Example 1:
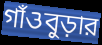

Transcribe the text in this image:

গাঁওবুড়ার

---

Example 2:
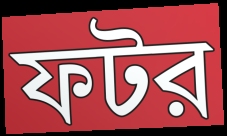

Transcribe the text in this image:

ফটর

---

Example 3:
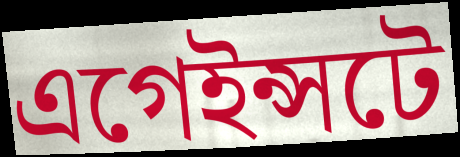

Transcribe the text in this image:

এগেইন্সটে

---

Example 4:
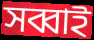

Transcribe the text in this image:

সব্বাই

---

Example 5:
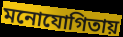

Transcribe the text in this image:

মনোযোগিতায়